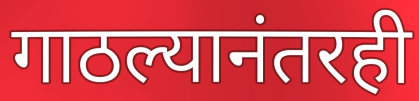
गाठल्यानंतरही